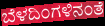
ಬೆಳದಿಂಗಳಿನಂತೆ